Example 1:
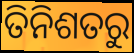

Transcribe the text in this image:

ତିନିଶତରୁ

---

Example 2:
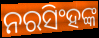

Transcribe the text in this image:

ନରସିଂହଙ୍କ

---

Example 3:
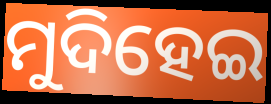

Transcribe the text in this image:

ମୁଦିହେଇ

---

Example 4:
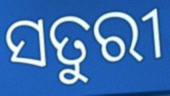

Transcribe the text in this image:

ସତୁରୀ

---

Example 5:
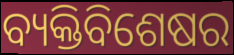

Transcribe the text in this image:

ବ୍ୟକ୍ତିବିଶେଷର